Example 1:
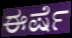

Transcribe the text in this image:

ಈರ್ಷೆ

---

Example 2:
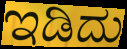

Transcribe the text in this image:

ಇಡಿದು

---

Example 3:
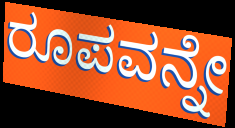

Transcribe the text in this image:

ರೂಪವನ್ನೇ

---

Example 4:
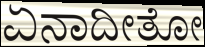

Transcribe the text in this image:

ಏನಾದೀತೋ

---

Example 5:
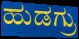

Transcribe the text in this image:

ಹುಡಗ್ರು